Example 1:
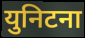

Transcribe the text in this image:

युनिटना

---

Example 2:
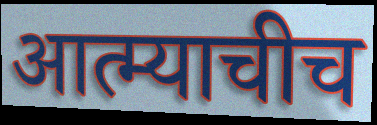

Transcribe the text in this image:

आत्म्याचीच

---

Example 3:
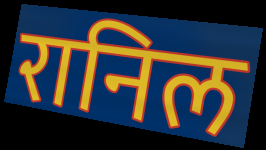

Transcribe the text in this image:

रानिल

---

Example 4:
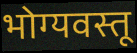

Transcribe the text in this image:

भोग्यवस्तू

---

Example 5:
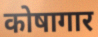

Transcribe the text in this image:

कोषागार